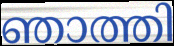
ഞാത്തി